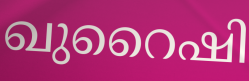
ഖുറൈഷി